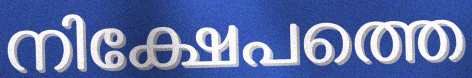
നിക്ഷേപത്തെ